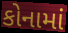
કોનામાં